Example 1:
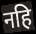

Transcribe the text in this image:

नहि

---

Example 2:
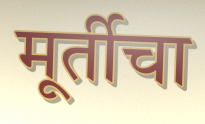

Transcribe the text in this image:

मूर्तीचा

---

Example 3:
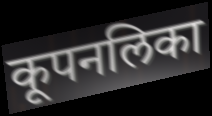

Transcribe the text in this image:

कूपनलिका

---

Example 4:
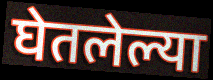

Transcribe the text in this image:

घेतलेल्या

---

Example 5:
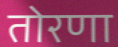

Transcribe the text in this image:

तोरणा